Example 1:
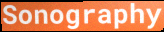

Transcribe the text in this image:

Sonography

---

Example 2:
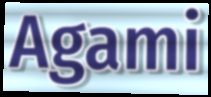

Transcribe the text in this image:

Agami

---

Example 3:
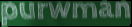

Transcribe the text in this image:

purwman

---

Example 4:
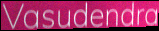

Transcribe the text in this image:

Vasudendra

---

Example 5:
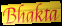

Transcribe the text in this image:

Bhakta